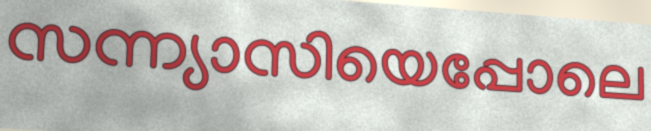
സന്ന്യാസിയെപ്പോലെ